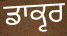
ਡਾਕ੍ਟਰ